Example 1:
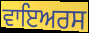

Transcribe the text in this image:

ਵਾਇਅਰਸ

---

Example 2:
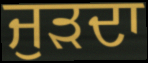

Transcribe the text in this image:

ਜੁੜਦਾ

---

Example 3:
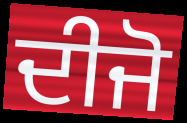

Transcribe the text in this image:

ਦੀਜੋ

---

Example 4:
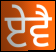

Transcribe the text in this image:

ਏਵੈ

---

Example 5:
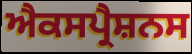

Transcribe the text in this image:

ਐਕਸਪ੍ਰੈਸ਼ਨਸ